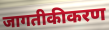
जागतीकीकरण